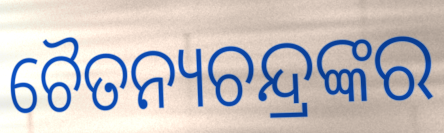
ଚୈତନ୍ୟଚନ୍ଦ୍ରଙ୍କର